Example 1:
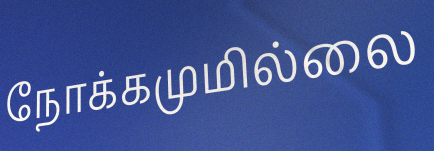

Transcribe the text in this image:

நோக்கமுமில்லை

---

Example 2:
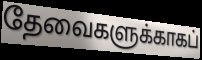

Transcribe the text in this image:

தேவைகளுக்காகப்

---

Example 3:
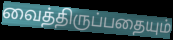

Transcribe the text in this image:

வைத்திருப்பதையும்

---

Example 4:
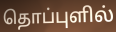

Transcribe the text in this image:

தொப்புளில்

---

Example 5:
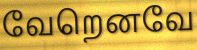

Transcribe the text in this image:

வேறெனவே